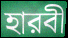
হারবী